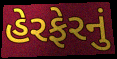
હેરફેરનું